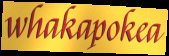
whakapokea